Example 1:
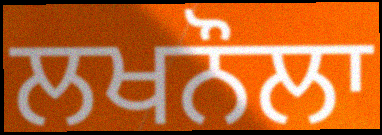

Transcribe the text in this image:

ਲਖਨੌਲਾ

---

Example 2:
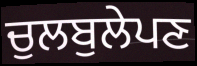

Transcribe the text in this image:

ਚੁਲਬੁਲੇਪਣ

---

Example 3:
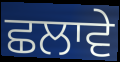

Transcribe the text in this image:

ਛਲਾਵੇ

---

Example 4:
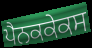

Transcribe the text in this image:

ਪੈਨਕਕੇਕਸ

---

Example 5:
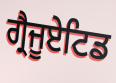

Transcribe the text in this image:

ਗ੍ਰੈਜੂਏਟਿਡ